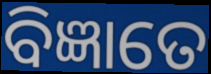
ବିଜ୍ଞାତେ